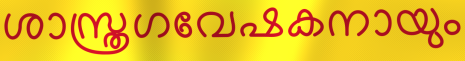
ശാസ്ത്രഗവേഷകനായും